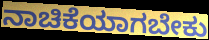
ನಾಚಿಕೆಯಾಗಬೇಕು